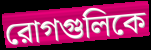
রোগগুলিকে